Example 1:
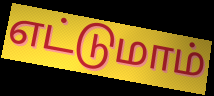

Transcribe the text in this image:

எட்டுமாம்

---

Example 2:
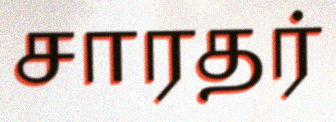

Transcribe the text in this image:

சாரதர்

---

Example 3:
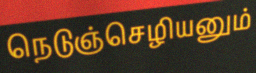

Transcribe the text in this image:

நெடுஞ்செழியனும்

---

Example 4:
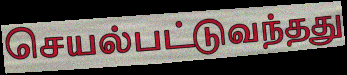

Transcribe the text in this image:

செயல்பட்டுவந்தது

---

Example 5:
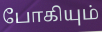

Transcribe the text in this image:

போகியும்